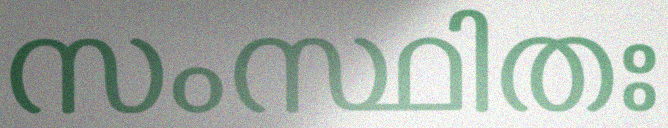
സംസ്ഥിതഃ